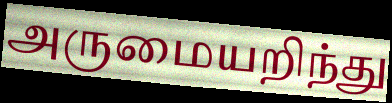
அருமையறிந்து